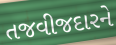
તજવીજદારને